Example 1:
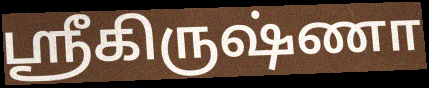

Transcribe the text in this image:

ஸ்ரீகிருஷ்ணா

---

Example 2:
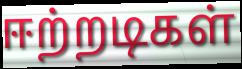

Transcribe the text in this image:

ஈற்றடிகள்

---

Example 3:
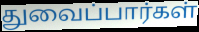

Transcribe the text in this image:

துவைப்பார்கள்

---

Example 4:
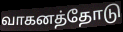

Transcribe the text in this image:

வாகனத்தோடு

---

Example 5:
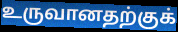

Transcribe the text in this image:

உருவானதற்குக்